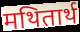
मथितार्थ